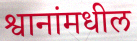
श्वानांमधील